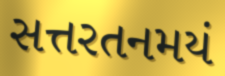
સત્તરતનમયં